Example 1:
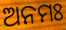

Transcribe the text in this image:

ଅନମଃ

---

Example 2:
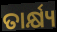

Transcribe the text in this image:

ତାର୍କ୍ଷ୍ୟ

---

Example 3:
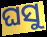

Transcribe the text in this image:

ଘସୁ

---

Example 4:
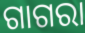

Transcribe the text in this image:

ଗାଗରା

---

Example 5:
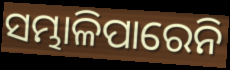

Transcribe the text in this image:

ସମ୍ଭାଳିପାରେନି